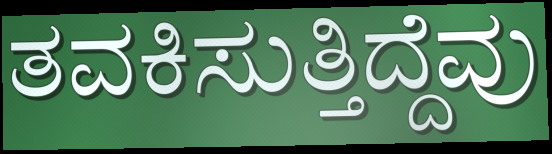
ತವಕಿಸುತ್ತಿದ್ದೆವು